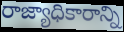
రాజ్యాధికారాన్ని